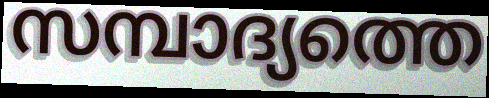
സമ്പാദ്യത്തെ